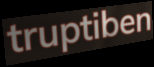
truptiben